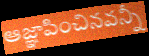
ఆజ్ఞాపించినవన్నీ